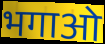
भगाओ